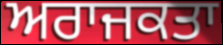
ਅਰਾਜਕਤਾ